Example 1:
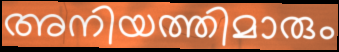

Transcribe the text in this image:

അനിയത്തിമാരും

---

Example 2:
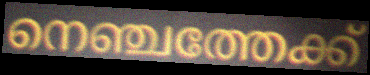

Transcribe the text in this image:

നെഞ്ചത്തേക്ക്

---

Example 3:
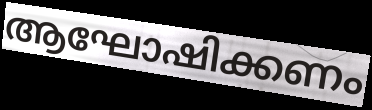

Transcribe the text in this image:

ആഘോഷിക്കണം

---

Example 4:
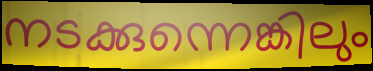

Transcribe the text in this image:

നടക്കുന്നെങ്കിലും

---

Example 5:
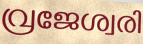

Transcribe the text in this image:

വ്രജേശ്വരി